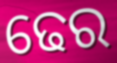
ଢେର